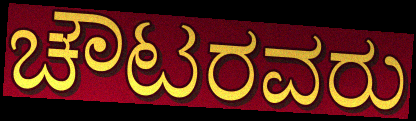
ಚೌಟರವರು